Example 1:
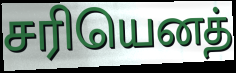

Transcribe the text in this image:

சரியெனத்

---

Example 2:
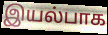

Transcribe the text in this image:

இயல்பாக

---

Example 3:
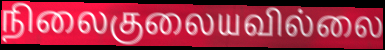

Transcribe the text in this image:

நிலைகுலையவில்லை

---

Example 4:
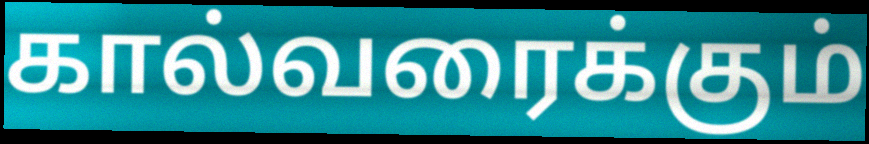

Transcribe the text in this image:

கால்வரைக்கும்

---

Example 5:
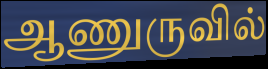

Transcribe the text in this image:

ஆணுருவில்